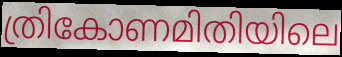
ത്രികോണമിതിയിലെ